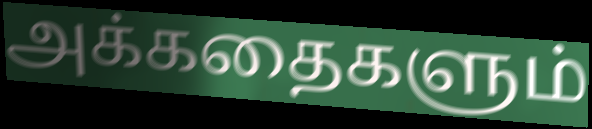
அக்கதைகளும்